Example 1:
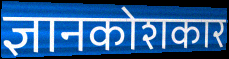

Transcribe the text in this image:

ज्ञानकोशकार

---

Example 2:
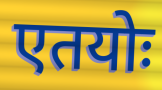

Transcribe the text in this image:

एतयोः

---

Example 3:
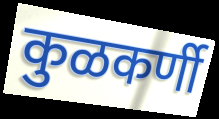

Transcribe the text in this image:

कुळकर्णी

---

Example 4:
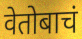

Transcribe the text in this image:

वेतोबाचं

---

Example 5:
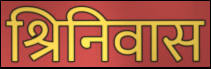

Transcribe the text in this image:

श्रिनिवास